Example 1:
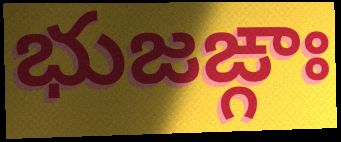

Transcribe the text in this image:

భుజఙ్గాః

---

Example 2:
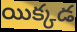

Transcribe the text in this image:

యిక్కడ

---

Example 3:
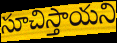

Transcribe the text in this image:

సూచిస్తాయని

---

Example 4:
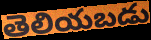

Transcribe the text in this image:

తెలియబడు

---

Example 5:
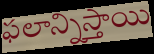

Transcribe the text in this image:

ఫలాన్నిస్తాయి